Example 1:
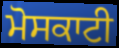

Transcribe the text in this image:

ਮੋਸਕਾਟੀ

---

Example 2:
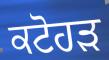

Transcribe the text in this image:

ਕਟੋਹੜ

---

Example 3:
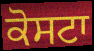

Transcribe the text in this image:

ਕੋਸਟਾ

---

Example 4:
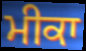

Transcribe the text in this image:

ਮੀਕਾ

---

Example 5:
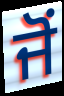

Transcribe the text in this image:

ਜੋਂ